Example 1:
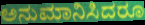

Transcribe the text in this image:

ಅನುಮಾನಿಸಿದರೂ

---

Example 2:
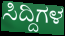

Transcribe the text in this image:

ಸಿದ್ದಿಗಳ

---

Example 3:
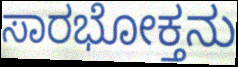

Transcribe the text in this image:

ಸಾರಭೋಕ್ತನು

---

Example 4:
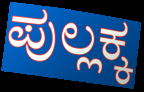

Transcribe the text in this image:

ಪುಲ್ಲಕ್ಕ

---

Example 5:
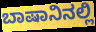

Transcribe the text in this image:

ಬಾಷಾನಿನಲ್ಲಿ